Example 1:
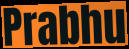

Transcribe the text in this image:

Prabhu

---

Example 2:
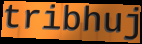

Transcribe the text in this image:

tribhuj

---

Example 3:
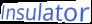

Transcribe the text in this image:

Insulator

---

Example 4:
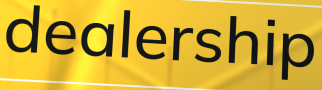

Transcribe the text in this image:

dealership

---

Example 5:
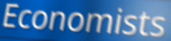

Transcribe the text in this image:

Economists